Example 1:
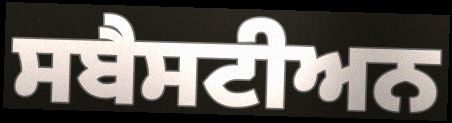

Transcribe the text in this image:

ਸਬੈਸਟੀਅਨ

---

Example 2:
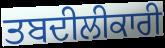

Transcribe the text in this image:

ਤਬਦੀਲੀਕਾਰੀ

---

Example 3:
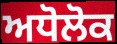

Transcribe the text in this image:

ਅਧੋਲੋਕ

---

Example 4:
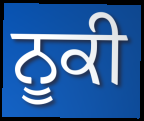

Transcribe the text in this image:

ਨੂਕੀ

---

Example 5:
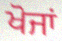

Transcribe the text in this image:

ਖੋਜਾਂ